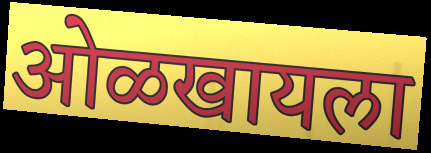
ओळखायला